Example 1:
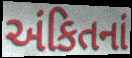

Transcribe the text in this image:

અંકિતનાં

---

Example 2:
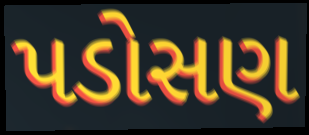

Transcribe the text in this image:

પડોસણ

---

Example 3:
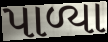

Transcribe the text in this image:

પાળ્યા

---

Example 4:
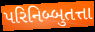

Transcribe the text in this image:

પરિનિબ્બુતત્તા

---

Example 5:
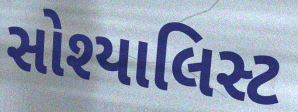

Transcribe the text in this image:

સોશ્યાલિસ્ટ